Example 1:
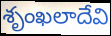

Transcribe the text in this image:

శృంఖలాదేవి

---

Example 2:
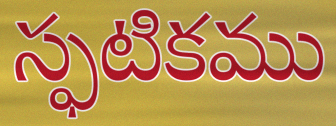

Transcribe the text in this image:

స్ఫటికము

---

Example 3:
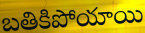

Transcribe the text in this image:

బతికిపోయాయి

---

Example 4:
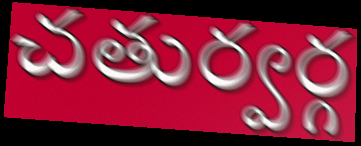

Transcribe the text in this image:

చతుర్వర్గ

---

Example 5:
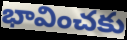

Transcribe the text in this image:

భావించకు